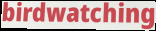
birdwatching